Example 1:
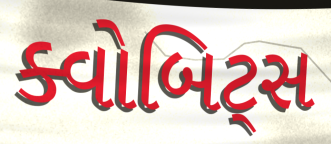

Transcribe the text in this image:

ક્વોબિટ્સ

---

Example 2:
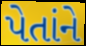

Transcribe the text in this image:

પેતાંને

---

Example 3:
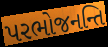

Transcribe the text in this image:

પરભોજનન્તિ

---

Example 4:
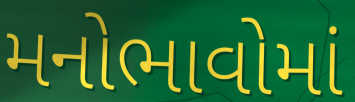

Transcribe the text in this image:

મનોભાવોમાં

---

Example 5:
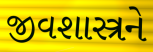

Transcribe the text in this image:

જીવશાસ્ત્રને